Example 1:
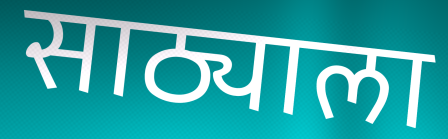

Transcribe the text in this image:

साठ्याला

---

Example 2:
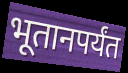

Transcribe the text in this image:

भूतानपर्यंत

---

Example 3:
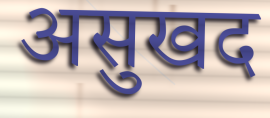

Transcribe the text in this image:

असुखद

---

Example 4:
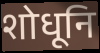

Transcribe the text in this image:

शोधूनि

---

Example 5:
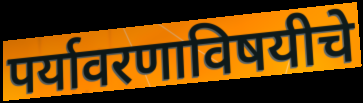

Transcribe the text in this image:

पर्यावरणाविषयीचे